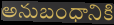
అనుబంధానికి